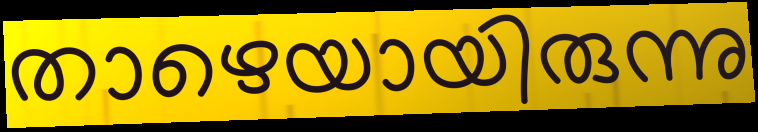
താഴെയായിരുന്നു